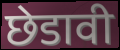
छेडावी